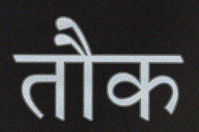
तौक